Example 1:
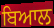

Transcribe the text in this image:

ਬਿਆਲ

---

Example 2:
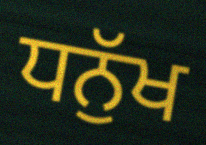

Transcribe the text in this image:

ਧਨੁੱਖ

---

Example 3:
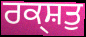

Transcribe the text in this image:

ਰਕ੍ਸ਼ਤੁ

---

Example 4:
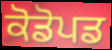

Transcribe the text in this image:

ਕੋਡੋਪਡ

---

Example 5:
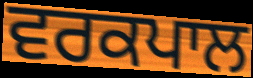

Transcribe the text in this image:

ਵਰਕਪਾਲ